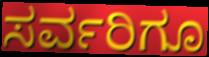
ಸರ್ವರಿಗೂ